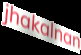
jhakalnan